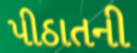
પીઠાતની